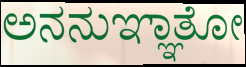
ಅನನುಞ್ಞಾತೋ